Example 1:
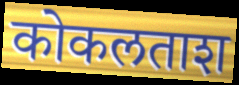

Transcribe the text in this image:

कोकलताश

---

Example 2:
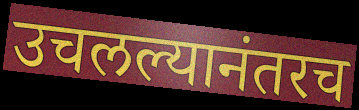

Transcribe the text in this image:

उचलल्यानंतरच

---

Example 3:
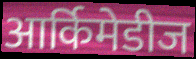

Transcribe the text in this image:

आर्किमेडीज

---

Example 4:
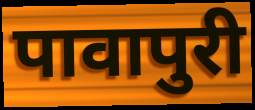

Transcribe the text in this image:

पावापुरी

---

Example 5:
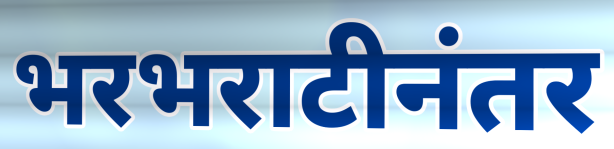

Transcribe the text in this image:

भरभराटीनंतर